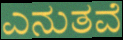
ಎನುತವೆ